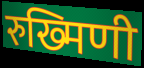
रुख्मिणी